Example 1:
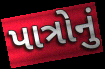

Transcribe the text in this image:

પાત્રોનું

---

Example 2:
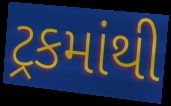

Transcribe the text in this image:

ટ્રકમાંથી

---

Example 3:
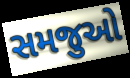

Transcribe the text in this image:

સમજુઓ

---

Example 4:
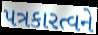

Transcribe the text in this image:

પત્રકારત્વને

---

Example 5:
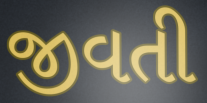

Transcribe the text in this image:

જીવતી